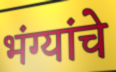
भंग्यांचे